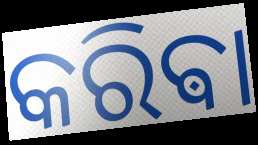
କରିଵା